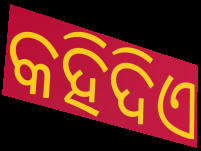
କହିଦିଏ